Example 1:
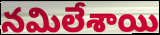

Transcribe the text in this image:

నమిలేశాయి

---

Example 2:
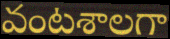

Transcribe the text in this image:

వంటశాలగా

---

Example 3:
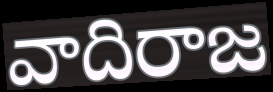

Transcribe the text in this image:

వాదిరాజ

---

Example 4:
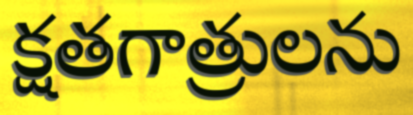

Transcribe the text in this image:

క్షతగాత్రులను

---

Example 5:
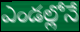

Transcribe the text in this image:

ఎండల్లోనే